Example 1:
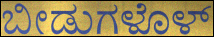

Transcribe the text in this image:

ಬೀಡುಗಳೊಳ್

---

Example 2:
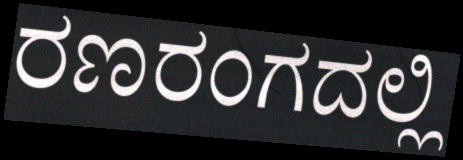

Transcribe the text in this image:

ರಣರಂಗದಲ್ಲಿ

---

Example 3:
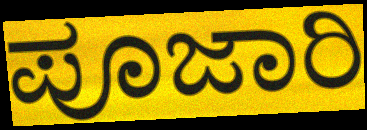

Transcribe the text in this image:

ಪೂಜಾರಿ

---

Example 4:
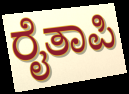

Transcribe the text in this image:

ರೈತಾಪಿ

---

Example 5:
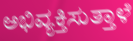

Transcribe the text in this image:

ಅಭಿವ್ಯಕ್ತಿಸುತ್ತಾಳೆ